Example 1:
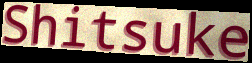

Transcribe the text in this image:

Shitsuke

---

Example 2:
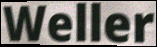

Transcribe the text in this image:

Weller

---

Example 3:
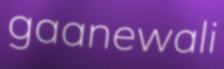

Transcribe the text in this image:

gaanewali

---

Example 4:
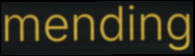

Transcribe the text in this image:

mending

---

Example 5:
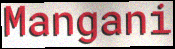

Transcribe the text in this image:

Mangani